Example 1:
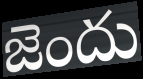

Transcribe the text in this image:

జెందు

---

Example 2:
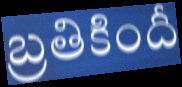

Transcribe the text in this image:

బ్రతికిందీ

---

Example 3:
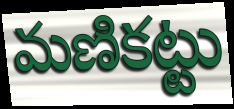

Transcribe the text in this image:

మణికట్టు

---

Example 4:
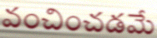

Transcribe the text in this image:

వంచించడమే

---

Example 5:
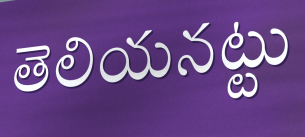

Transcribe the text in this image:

తెలియనట్టు